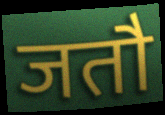
जतौ